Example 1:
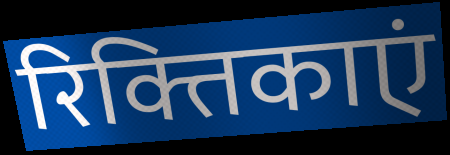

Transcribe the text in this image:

रिक्तिकाएं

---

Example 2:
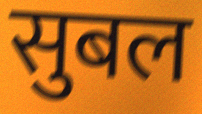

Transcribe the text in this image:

सुबल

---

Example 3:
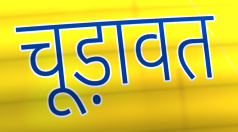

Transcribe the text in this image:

चूड़ावत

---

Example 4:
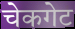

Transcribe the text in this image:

चेकगेट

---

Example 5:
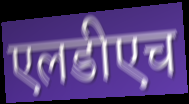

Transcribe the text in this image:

एलडीएच